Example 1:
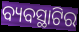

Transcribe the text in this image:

ବ୍ୟବସ୍ଥାଟିର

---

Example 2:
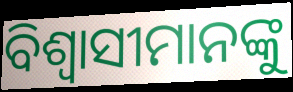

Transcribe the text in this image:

ବିଶ୍ୱାସୀମାନଙ୍କୁ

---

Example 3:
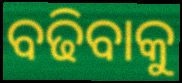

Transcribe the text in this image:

ବଢିବାକୁ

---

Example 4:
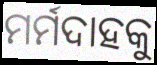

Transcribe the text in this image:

ମର୍ମଦାହକୁ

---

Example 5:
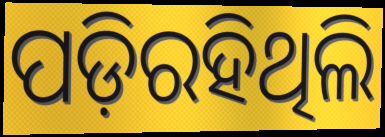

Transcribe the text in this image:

ପଡ଼ିରହିଥିଲି